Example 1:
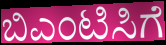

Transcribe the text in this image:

ಬಿಎಂಟಿಸಿಗೆ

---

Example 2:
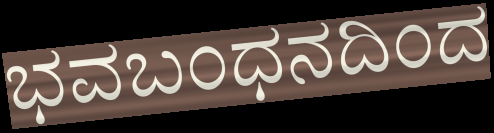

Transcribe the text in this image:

ಭವಬಂಧನದಿಂದ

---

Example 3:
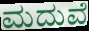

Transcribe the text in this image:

ಮದುವೆ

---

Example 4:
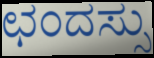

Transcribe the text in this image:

ಛಂದಸ್ಸು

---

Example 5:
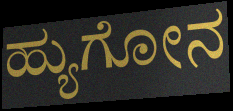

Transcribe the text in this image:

ಹ್ಯುಗೋನ